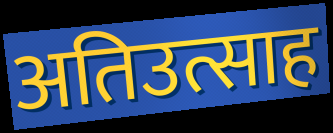
अतिउत्साह